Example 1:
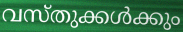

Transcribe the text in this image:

വസ്തുക്കൾക്കും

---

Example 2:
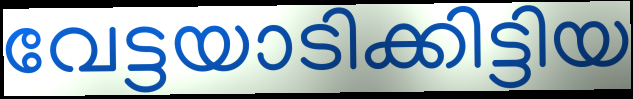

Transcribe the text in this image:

വേട്ടയാടിക്കിട്ടിയ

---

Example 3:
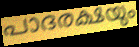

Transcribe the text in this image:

പാദരക്ഷയും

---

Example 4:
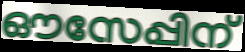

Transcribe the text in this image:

ഔസേപ്പിന്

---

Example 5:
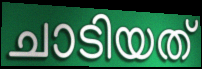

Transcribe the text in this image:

ചാടിയത്